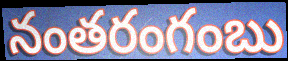
నంతరంగంబు